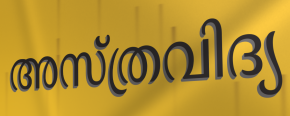
അസ്ത്രവിദ്യ